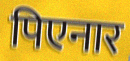
पिएनार